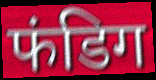
फंडिग